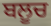
ਬਲੂਚ